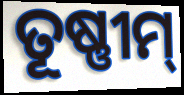
ତୂଷ୍ଣୀମ୍